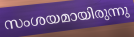
സംശയമായിരുന്നു